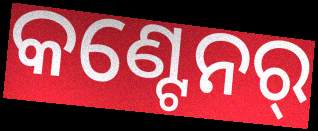
କଣ୍ଟେନର୍